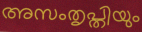
അസംതൃപ്തിയും